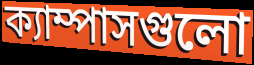
ক্যাম্পাসগুলো